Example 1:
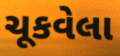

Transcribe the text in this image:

ચૂકવેલા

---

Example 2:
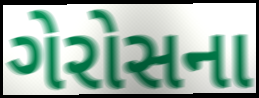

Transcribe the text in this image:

ગેરોસના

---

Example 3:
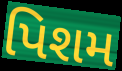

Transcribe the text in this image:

પિશમ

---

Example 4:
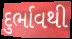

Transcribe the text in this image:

દુર્ભાવથી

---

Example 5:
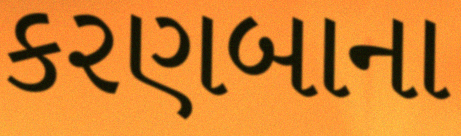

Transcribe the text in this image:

કરણબાના